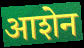
आशेन